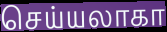
செய்யலாகா